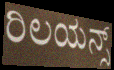
ರಿಲಯನ್ಸ್